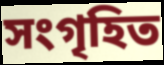
সংগৃহিত